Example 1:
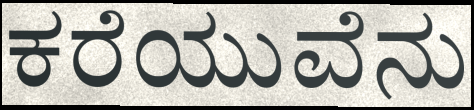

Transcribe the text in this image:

ಕರೆಯುವೆನು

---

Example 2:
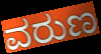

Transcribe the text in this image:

ವರುಣ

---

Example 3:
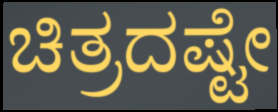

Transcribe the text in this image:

ಚಿತ್ರದಷ್ಟೇ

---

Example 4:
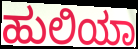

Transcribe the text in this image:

ಹುಲಿಯಾ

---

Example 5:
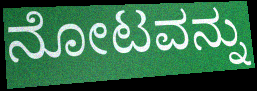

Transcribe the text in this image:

ನೋಟವನ್ನು